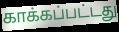
காக்கப்பட்டது